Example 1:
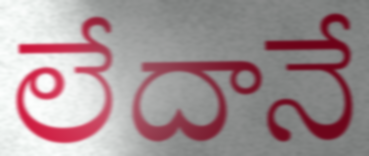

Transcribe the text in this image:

లేదానే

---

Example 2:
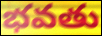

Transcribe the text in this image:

భవతు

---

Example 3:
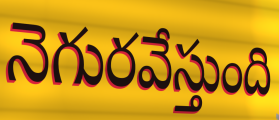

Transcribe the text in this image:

నెగురవేస్తుంది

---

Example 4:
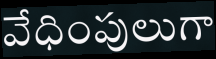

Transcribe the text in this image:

వేధింపులుగా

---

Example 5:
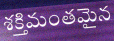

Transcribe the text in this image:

శక్తిమంతమైన